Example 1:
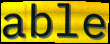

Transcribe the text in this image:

able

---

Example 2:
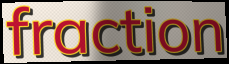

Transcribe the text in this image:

fraction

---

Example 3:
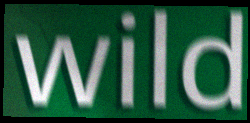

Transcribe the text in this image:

wild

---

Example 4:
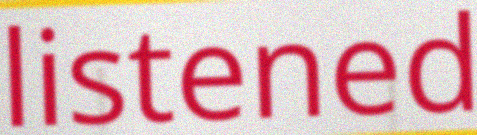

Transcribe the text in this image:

listened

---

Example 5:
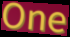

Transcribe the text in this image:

One